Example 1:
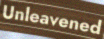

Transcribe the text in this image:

Unleavened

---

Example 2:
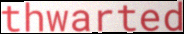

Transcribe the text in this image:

thwarted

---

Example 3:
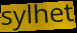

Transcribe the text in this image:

sylhet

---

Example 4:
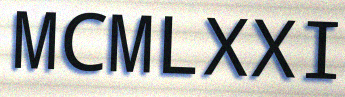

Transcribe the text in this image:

MCMLXXI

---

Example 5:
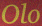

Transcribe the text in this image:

Olo